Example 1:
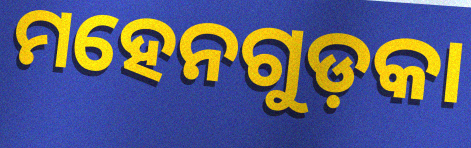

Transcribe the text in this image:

ମହେନଗୁଡ଼କା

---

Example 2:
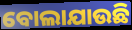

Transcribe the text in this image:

ବୋଲାଯାଉଛି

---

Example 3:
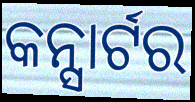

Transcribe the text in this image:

କନ୍ସାର୍ଟର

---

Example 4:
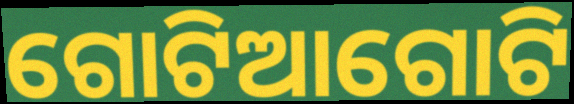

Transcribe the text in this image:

ଗୋଟିଆଗୋଟି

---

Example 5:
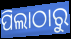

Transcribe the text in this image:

ପିଲାଠାରୁ